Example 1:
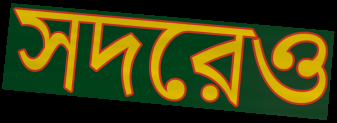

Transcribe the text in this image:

সদরেও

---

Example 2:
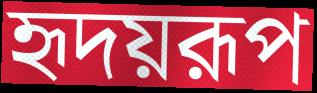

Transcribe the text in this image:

হৃদয়রূপ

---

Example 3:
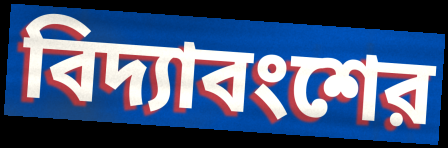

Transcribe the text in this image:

বিদ্যাবংশের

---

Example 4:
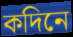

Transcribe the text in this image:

কদিনে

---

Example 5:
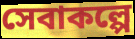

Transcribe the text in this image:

সেবাকল্পে